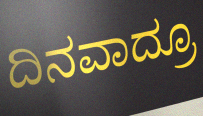
ದಿನವಾದ್ರೂ